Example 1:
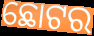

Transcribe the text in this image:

ଛୋଟର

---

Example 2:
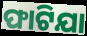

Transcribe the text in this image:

ଫାଟିଯା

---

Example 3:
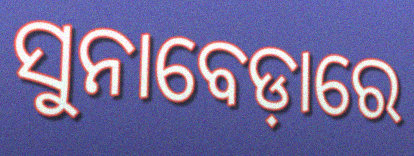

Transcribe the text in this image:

ସୁନାବେଡ଼ାରେ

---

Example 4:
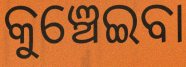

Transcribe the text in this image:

କୁଞ୍ଚେଇବା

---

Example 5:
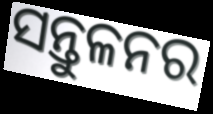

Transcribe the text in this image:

ସନ୍ତୁଳନର